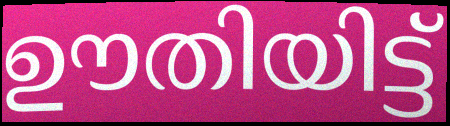
ഊതിയിട്ട്